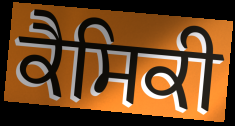
ਕੈਸਿਕੀ